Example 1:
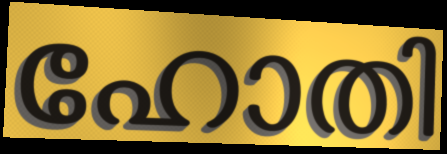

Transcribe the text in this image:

ഹോതി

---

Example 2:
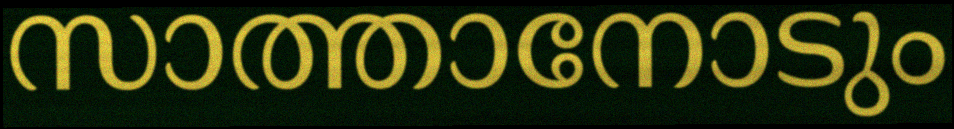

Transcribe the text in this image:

സാത്താനോടും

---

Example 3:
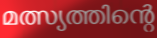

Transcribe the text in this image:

മത്സ്യത്തിന്റെ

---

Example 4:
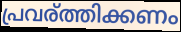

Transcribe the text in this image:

പ്രവര്ത്തിക്കണം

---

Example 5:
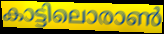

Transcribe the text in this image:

കാട്ടിലൊരാൺ